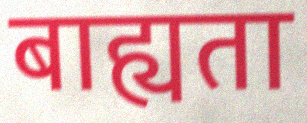
बाह्यता